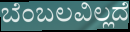
ಬೆಂಬಲವಿಲ್ಲದೆ